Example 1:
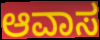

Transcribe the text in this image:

ಆವಾಸ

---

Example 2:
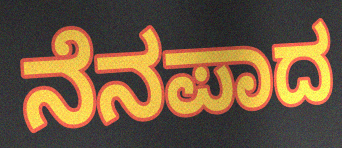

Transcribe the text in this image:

ನೆನಪಾದ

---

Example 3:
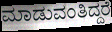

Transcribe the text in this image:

ಮಾಡುವಂತಿದ್ದರೆ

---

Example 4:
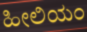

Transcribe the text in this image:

ಹೀಲಿಯಂ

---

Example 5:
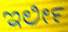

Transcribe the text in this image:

ಇರ್ಲೀ